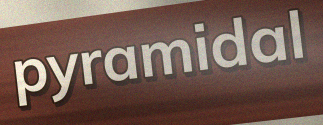
pyramidal